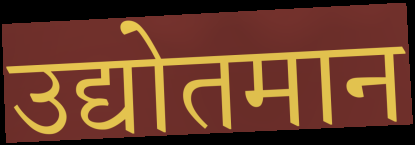
उद्योतमान